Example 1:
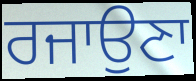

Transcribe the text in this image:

ਰਜਾਉਣਾ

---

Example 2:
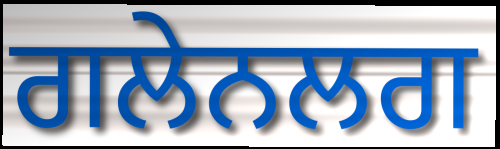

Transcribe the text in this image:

ਗਲੇਨਲਗ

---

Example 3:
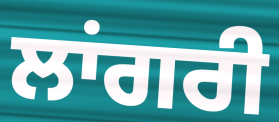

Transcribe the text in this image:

ਲਾਂਗਰੀ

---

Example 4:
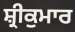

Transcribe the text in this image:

ਸ਼੍ਰੀਕੁਮਾਰ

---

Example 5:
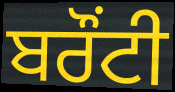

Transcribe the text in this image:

ਬਰੌਂਟੀ